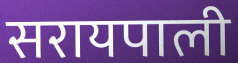
सरायपाली